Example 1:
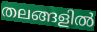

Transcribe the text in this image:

തലങ്ങളിൽ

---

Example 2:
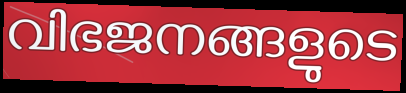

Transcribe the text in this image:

വിഭജനങ്ങളുടെ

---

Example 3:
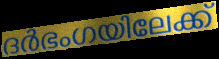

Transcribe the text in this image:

ദർഭംഗയിലേക്ക്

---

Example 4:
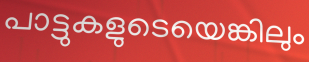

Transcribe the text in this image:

പാട്ടുകളുടെയെങ്കിലും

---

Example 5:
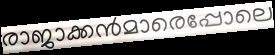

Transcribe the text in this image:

രാജാക്കൻമാരെപ്പോലെ